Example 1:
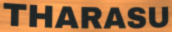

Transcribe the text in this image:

THARASU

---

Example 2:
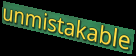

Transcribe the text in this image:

unmistakable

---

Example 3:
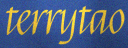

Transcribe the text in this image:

terrytao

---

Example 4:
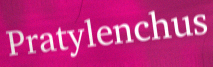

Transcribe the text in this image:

Pratylenchus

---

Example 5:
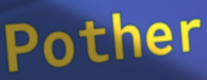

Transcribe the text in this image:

Pother